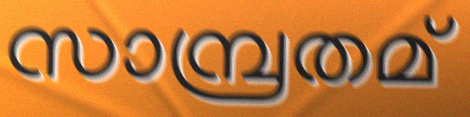
സാമ്പ്രതമ്